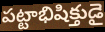
పట్టాభిషిక్తుడై